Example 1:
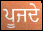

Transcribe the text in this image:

ਪੂਜਦੇ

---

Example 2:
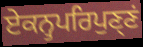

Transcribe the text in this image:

ਏਕਨ੍ਤਪਰਿਪੁਣ੍ਣਂ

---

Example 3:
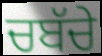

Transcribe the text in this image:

ਚਬੱਚੇ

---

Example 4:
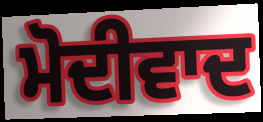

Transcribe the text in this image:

ਮੋਦੀਵਾਦ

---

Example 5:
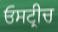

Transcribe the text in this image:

ਓਸਟ੍ਰੀਚ